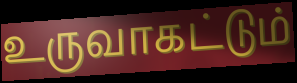
உருவாகட்டும்